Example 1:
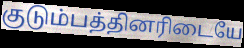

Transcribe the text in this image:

குடும்பத்தினரிடையே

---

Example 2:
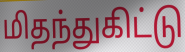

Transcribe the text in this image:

மிதந்துகிட்டு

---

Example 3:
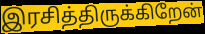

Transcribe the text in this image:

இரசித்திருக்கிறேன்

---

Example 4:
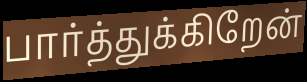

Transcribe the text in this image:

பார்த்துக்கிறேன்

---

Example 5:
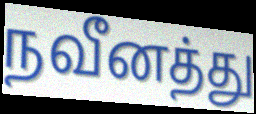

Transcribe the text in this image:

நவீனத்து